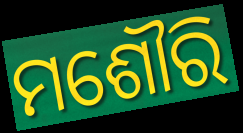
ମଶୌରି